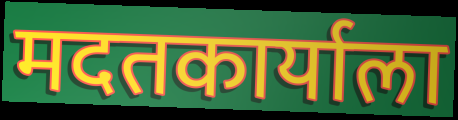
मदतकार्याला